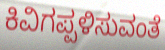
ಕಿವಿಗಪ್ಪಳಿಸುವಂತೆ